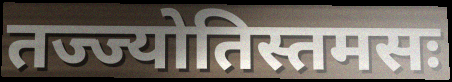
तज्ज्योतिस्तमसः